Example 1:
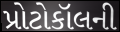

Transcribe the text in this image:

પ્રોટોકૉલની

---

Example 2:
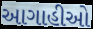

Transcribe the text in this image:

આગાહીઓ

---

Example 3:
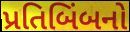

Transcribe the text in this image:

પ્રતિબિંબનો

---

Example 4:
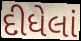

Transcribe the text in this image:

દીધેલાં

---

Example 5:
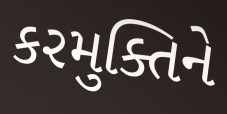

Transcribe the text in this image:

કરમુક્તિને